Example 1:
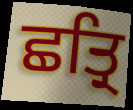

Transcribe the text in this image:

ਛਤ੍ਰਿ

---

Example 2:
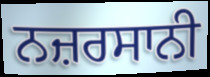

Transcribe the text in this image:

ਨਜ਼ਰਸਾਨੀ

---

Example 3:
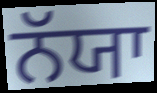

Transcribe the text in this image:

ਨੱਯਾ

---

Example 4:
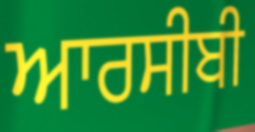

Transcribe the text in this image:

ਆਰਸੀਬੀ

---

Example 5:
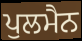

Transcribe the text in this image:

ਪੁਲਮੈਨ